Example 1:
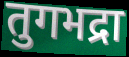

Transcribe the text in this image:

तुगभद्रा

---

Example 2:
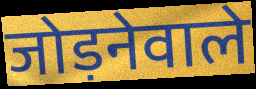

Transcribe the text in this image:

जोड़नेवाले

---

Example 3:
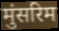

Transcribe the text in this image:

मुंसरिम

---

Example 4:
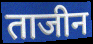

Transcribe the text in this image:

ताजीन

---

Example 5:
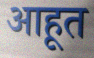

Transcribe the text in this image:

आहूत